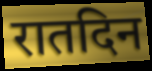
रातदिन